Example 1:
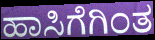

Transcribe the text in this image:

ಹಾಸಿಗೆಗಿಂತ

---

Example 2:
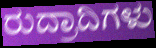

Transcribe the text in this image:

ರುದ್ರಾದಿಗಳು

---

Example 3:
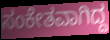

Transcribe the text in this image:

ಸಂಕೇತವಾಗಿದ್ದ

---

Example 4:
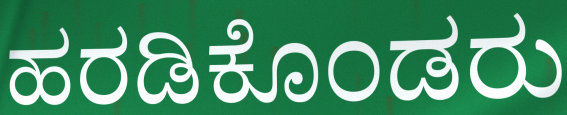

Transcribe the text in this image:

ಹರಡಿಕೊಂಡರು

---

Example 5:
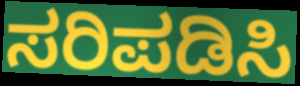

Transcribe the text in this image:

ಸರಿಪಡಿಸಿ